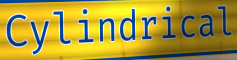
Cylindrical